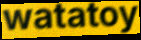
watatoy